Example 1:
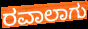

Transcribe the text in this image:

ರವಾಲಾಗು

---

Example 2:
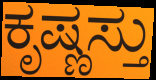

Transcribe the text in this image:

ಕೃಷ್ಣಸ್ತು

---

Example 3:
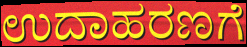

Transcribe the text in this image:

ಉದಾಹರಣಗೆ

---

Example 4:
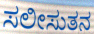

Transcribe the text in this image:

ಸಲೀಸುತನ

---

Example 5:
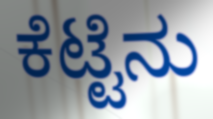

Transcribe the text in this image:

ಕೆಟ್ಟೆನು